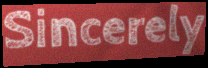
Sincerely